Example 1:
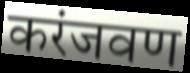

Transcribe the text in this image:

करंजवण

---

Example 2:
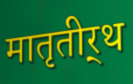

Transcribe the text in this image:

मातृतीर्थ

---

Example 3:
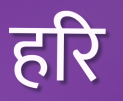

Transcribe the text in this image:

हरि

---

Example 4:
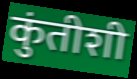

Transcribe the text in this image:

कुंतीशी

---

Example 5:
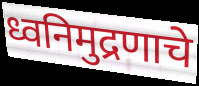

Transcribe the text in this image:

ध्वनिमुद्रणाचे